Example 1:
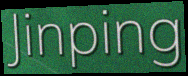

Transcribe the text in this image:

Jinping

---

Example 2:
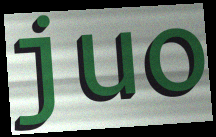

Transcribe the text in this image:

juo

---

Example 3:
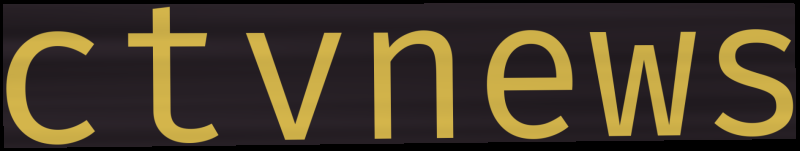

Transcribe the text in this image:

ctvnews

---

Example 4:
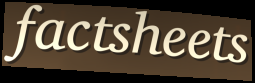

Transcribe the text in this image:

factsheets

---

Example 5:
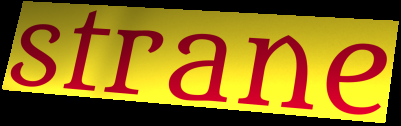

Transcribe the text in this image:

strane